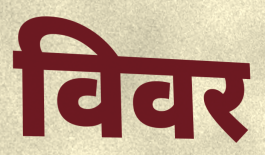
विवर